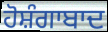
ਹੋਸ਼ੰਗਾਬਾਦ